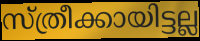
സ്ത്രീക്കായിട്ടല്ല